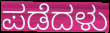
ಪಡೆದಳು